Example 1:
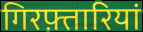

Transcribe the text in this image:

गिरफ़्तारियां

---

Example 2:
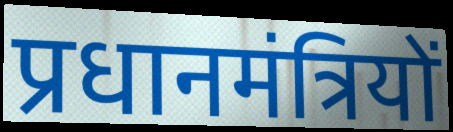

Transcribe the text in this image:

प्रधानमंत्रियों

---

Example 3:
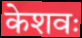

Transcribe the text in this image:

केशवः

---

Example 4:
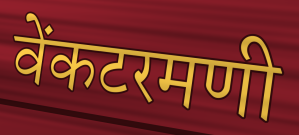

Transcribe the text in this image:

वेंकटरमणी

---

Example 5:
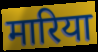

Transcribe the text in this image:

मारिया